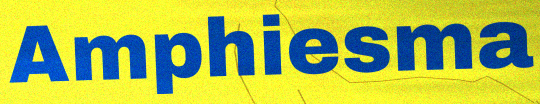
Amphiesma